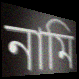
নামি